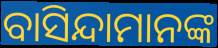
ବାସିନ୍ଦାମାନଙ୍କ